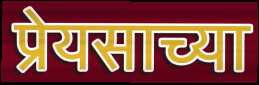
प्रेयसाच्या